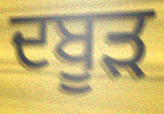
ਦਬੂੜ